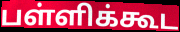
பள்ளிக்கூட